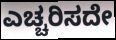
ಎಚ್ಚರಿಸದೇ